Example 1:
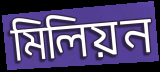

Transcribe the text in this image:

মিলিয়ন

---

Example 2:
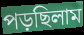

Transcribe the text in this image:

পড়ছিলাম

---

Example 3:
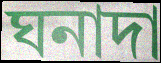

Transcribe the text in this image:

ঘনাদা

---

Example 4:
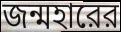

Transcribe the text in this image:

জন্মহারের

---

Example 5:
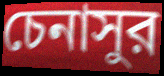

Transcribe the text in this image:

চেনাসুর